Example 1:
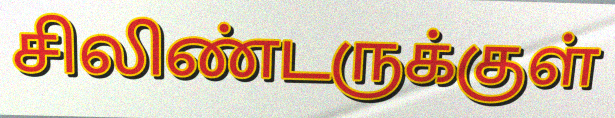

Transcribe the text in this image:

சிலிண்டருக்குள்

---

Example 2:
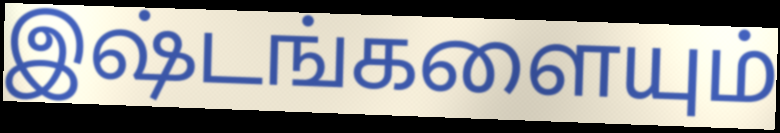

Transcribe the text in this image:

இஷ்டங்களையும்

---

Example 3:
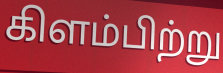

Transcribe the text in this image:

கிளம்பிற்று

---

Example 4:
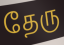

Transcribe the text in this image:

தேரு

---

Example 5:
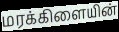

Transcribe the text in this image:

மரக்கிளையின்